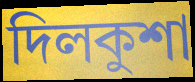
দিলকুশা